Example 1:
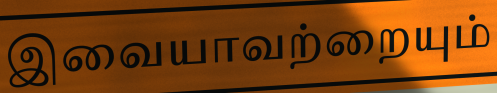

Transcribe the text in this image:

இவையாவற்றையும்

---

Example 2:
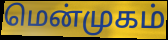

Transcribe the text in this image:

மென்முகம்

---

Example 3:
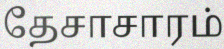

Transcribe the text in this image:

தேசாசாரம்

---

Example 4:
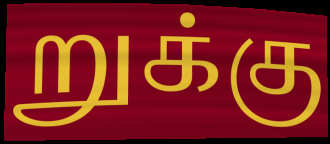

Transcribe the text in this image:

றுக்கு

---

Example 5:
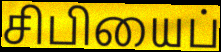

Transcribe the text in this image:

சிபியைப்